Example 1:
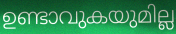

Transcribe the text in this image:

ഉണ്ടാവുകയുമില്ല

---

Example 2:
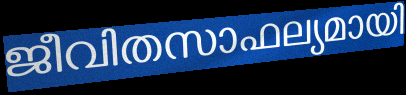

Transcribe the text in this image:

ജീവിതസാഫല്യമായി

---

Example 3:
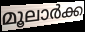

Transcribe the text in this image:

മൂലാർക്ക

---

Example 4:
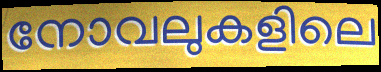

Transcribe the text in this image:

നോവലുകളിലെ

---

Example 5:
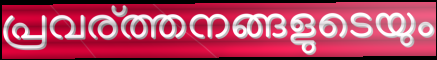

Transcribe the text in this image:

പ്രവര്ത്തനങ്ങളുടെയും